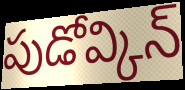
పుడోవ్కిన్